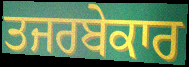
ਤਜਰਬੇਕਾਰ